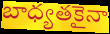
బాధ్యతకైనా